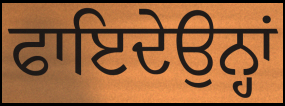
ਫਾਇਦੇਉਨ੍ਹਾਂ